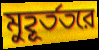
মুহূর্ততরে